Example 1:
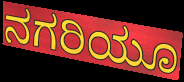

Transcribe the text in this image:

ನಗರಿಯೂ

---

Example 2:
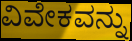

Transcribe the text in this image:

ವಿವೇಕವನ್ನು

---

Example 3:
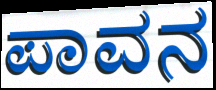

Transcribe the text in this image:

ಪಾವನ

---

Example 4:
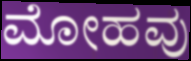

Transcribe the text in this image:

ಮೋಹವು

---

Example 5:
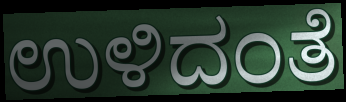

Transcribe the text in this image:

ಉಳಿದಂತೆ